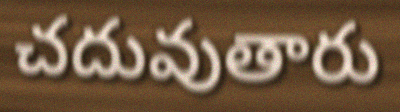
చదువుతారు